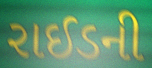
રાઈડની